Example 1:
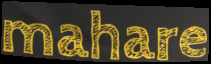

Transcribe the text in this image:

mahare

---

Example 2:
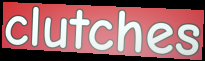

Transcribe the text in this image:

clutches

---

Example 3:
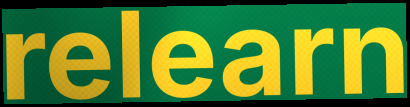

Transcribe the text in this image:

relearn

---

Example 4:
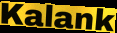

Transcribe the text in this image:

Kalank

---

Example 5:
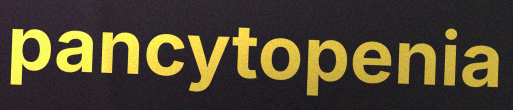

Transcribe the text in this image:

pancytopenia